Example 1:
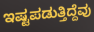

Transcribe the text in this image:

ಇಷ್ಟಪಡುತ್ತಿದ್ದೆವು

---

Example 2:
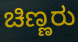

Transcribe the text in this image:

ಚಿಣ್ಣರು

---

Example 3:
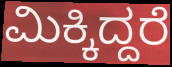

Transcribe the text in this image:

ಮಿಕ್ಕಿದ್ದರೆ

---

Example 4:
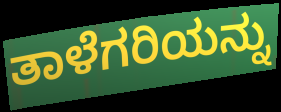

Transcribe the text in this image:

ತಾಳೆಗರಿಯನ್ನು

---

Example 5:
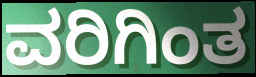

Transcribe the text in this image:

ವರಿಗಿಂತ